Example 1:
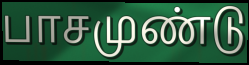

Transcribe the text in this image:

பாசமுண்டு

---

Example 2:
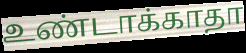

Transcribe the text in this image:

உண்டாக்காதா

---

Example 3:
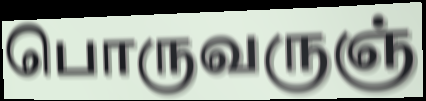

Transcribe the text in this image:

பொருவருஞ்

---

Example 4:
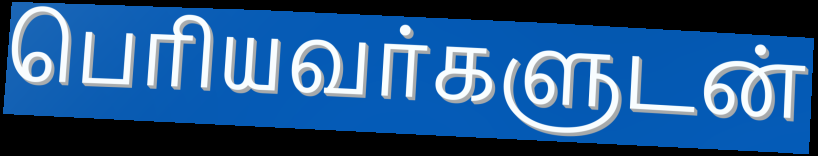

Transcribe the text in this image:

பெரியவர்களுடன்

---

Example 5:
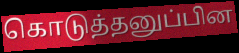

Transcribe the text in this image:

கொடுத்தனுப்பின